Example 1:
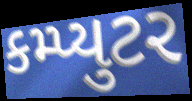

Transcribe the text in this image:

કમ્પ્યુટર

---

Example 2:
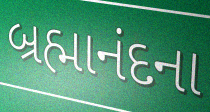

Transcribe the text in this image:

બ્રહ્માનંદના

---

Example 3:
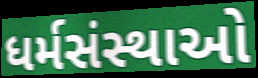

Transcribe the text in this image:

ધર્મસંસ્થાઓ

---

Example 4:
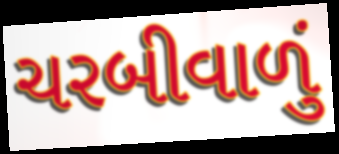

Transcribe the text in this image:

ચરબીવાળું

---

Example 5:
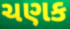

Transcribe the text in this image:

ચણક